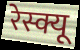
रेस्क्यू